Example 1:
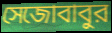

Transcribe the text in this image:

সেজোবাবুর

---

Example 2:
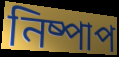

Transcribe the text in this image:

নিষ্পাপ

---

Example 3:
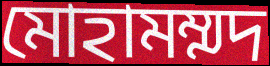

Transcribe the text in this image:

মোহামম্মদ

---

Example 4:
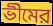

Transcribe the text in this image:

ভীমের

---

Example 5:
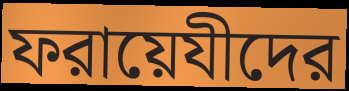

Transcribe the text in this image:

ফরায়েযীদের